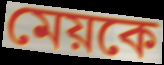
মেয়কে